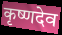
कृष्णदेव